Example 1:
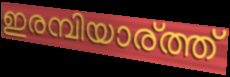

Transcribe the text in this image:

ഇരമ്പിയാര്ത്ത്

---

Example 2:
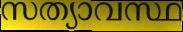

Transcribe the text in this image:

സത്യാവസ്ഥ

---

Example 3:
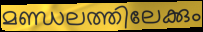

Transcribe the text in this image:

മണ്ഡലത്തിലേക്കും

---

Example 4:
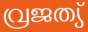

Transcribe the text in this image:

വ്രജത്യ്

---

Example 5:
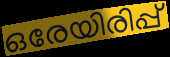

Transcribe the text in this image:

ഒരേയിരിപ്പ്